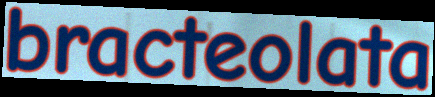
bracteolata